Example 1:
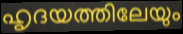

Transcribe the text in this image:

ഹൃദയത്തിലേയും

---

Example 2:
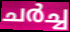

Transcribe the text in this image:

ചർച്ച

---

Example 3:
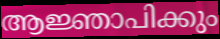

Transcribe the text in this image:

ആജ്ഞാപിക്കും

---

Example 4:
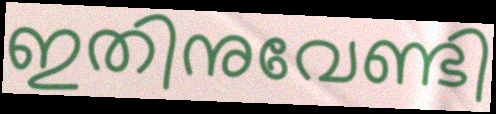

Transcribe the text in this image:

ഇതിനുവേണ്ടി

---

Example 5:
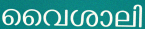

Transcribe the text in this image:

വൈശാലി